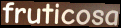
fruticosa